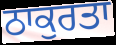
ਠਾਕੁਰਤਾ